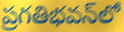
ప్రగతిభవన్‌లో